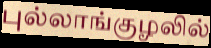
புல்லாங்குழலில்